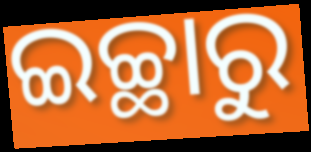
ଇଚ୍ଛାରୁ